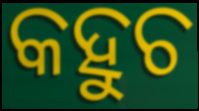
କହୁଚ